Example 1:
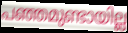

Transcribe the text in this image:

പഞ്ഞമുണ്ടായില്ല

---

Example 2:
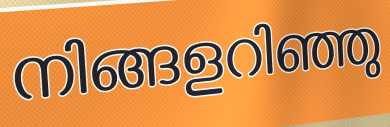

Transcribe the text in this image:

നിങ്ങളറിഞ്ഞു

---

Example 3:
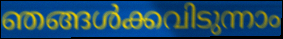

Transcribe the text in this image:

ഞങ്ങൾക്കവിടുന്നാം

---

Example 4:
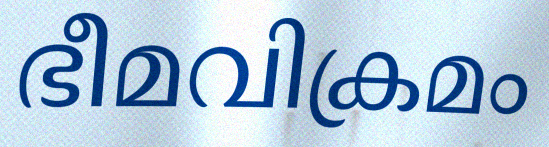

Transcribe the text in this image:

ഭീമവിക്രമം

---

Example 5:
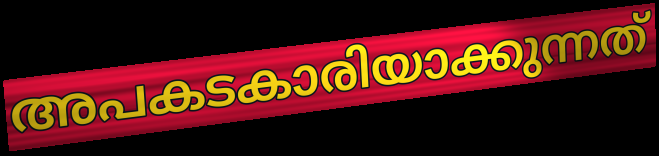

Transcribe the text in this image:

അപകടകാരിയാക്കുന്നത്